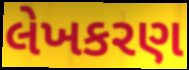
લેખકરણ